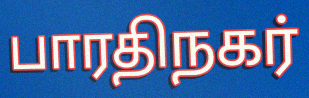
பாரதிநகர்